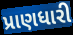
પ્રાણધારી